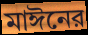
মাঈনের